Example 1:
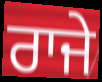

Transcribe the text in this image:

ਰਾਜੇ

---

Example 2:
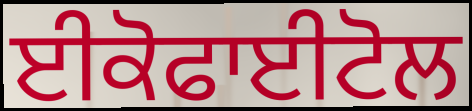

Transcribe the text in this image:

ਈਕੋਫਾਈਟੋਲ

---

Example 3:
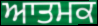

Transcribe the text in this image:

ਆਤਮਕ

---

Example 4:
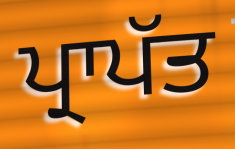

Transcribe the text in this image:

ਪ੍ਰਾਪੱਤ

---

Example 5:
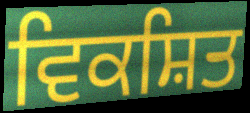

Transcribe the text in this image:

ਵਿਕਸ਼ਿਤ